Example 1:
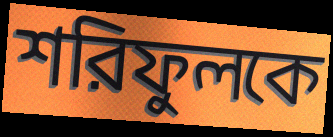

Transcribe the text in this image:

শরিফুলকে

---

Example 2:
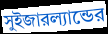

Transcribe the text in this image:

সুইজারল্যান্ডের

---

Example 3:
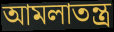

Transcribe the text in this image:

আমলাতন্ত্র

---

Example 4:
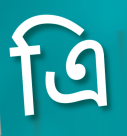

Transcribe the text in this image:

এি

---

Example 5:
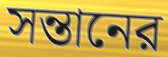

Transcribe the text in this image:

সন্তানের